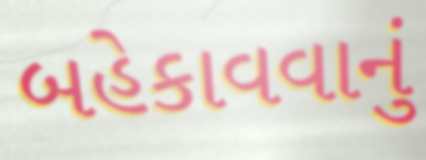
બહેકાવવાનું